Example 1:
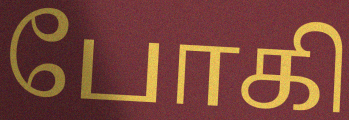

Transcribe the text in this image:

போகி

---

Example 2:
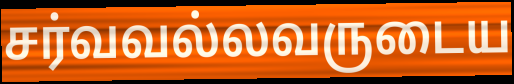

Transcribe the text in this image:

சர்வவல்லவருடைய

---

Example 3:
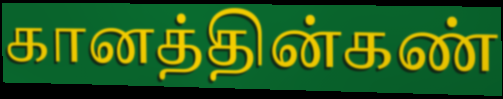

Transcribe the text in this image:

கானத்தின்கண்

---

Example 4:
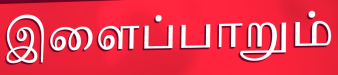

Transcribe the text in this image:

இளைப்பாறும்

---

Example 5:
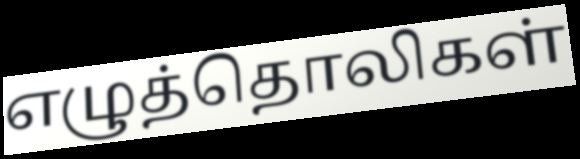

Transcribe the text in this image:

எழுத்தொலிகள்